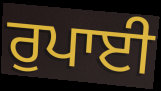
ਰੁਪਾਈ